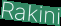
Rakini